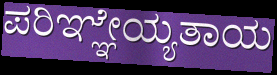
ಪರಿಞ್ಞೇಯ್ಯತಾಯ